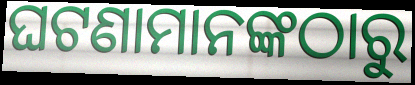
ଘଟଣାମାନଙ୍କଠାରୁ